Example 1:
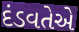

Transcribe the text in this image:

દંડવતેએ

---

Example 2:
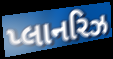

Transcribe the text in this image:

પ્લાનરિઝ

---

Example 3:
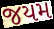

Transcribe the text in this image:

જયમ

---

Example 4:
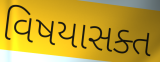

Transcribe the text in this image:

વિષયાસક્ત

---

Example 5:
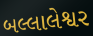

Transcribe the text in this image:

બલ્લાલેશ્વર